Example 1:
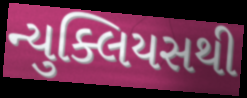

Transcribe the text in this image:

ન્યુક્લિયસથી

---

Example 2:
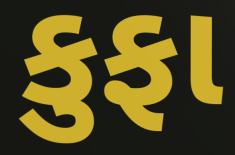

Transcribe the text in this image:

કુફા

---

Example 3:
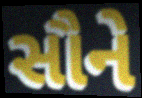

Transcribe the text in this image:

સૌને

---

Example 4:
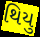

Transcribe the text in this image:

થિયુ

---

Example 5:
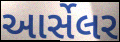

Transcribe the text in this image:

આર્સેલર